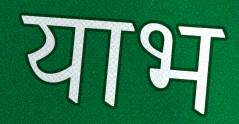
याभ